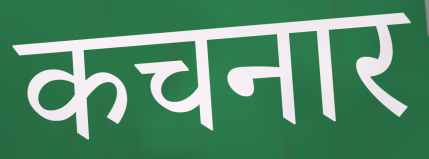
कचनार